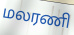
மலரணி